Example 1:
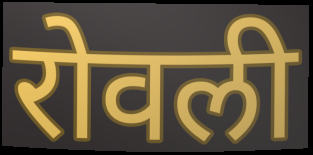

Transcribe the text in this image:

रोवली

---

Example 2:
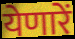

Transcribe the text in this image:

येणारें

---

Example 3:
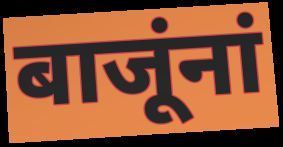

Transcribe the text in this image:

बाजूंनां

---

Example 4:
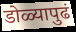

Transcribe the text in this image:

डोळ्यापुढं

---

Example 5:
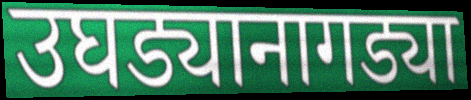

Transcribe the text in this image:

उघड्यानागड्या